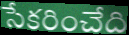
సేకరించేది